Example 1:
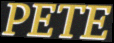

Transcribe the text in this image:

PETE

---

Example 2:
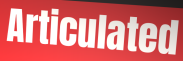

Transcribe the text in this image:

Articulated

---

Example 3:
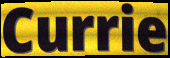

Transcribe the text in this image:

Currie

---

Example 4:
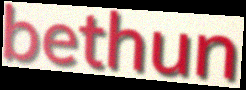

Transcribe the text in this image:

bethun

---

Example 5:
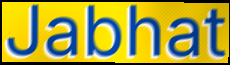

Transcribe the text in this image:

Jabhat